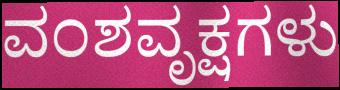
ವಂಶವೃಕ್ಷಗಳು